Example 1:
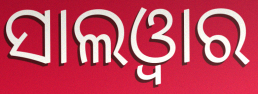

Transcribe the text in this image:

ସାଲଓ୍ଵାର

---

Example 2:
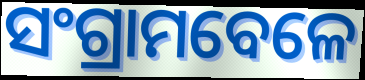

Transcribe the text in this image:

ସଂଗ୍ରାମବେଳେ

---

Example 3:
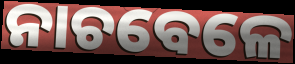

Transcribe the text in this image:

ନାଚବେଳେ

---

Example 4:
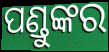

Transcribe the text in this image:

ପଣ୍ଡୁଙ୍କର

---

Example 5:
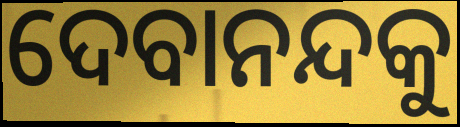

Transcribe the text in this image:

ଦେବାନନ୍ଦକୁ